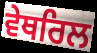
ਵੇਥਰਿਲ